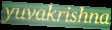
yuvakrishna